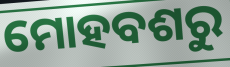
ମୋହବଶରୁ